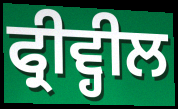
ਫ੍ਰੀਵ੍ਹੀਲ